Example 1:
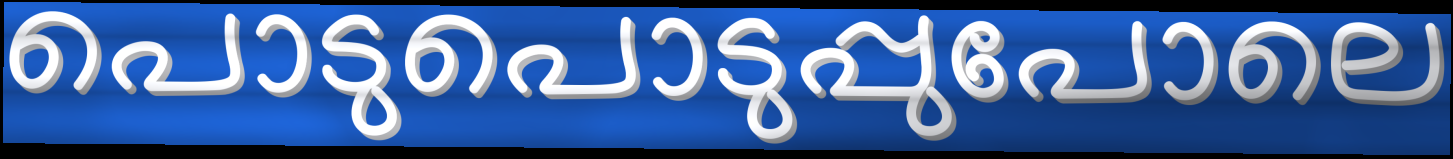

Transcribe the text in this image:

പൊടുപൊടുപ്പുപോലെ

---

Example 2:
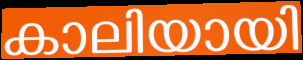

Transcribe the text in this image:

കാലിയായി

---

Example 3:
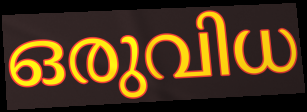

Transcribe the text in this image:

ഒരുവിധ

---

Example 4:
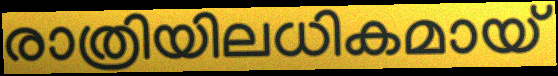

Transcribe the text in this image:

രാത്രിയിലധികമായ്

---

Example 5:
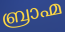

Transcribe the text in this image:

ബ്രാഹ്മ